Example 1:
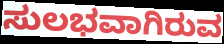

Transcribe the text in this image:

ಸುಲಭವಾಗಿರುವ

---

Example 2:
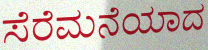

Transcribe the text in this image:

ಸೆರೆಮನೆಯಾದ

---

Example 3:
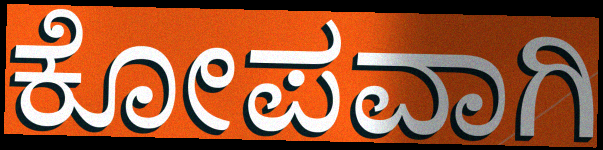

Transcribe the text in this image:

ಕೋಪವಾಗಿ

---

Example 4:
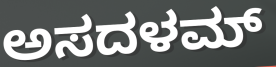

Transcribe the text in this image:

ಅಸದಳಮ್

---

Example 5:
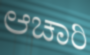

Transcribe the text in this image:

ಆಚಾರಿ